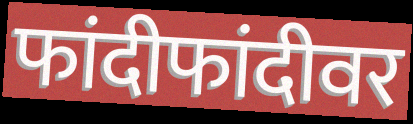
फांदीफांदीवर